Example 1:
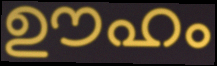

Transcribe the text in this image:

ഊഹം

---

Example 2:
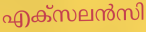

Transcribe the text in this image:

എക്സലൻസി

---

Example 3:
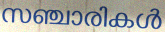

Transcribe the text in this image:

സഞ്ചാരികൾ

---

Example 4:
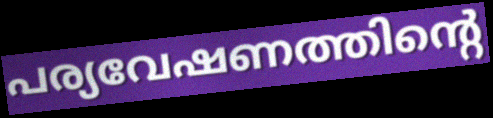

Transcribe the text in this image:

പര്യവേഷണത്തിന്റെ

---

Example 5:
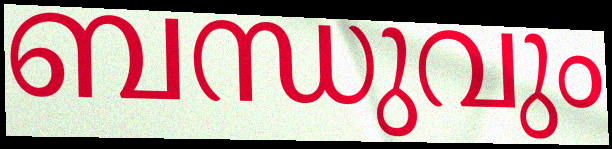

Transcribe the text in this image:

ബന്ധുവും